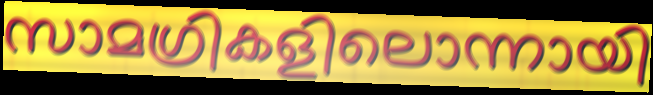
സാമഗ്രികളിലൊന്നായി